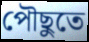
পৌছুতে